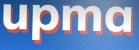
upma